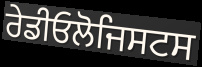
ਰੇਡੀਓਲੋਜਿਸਟਸ